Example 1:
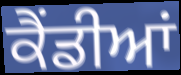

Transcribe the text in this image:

ਕੈਂਡੀਆਂ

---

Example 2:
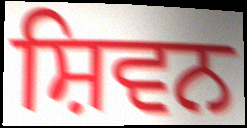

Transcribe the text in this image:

ਸ਼ਿਵਨ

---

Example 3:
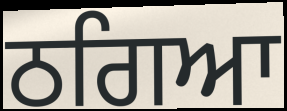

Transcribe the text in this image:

ਠਗਿਆ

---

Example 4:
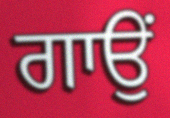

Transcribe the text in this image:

ਗਾਉਂ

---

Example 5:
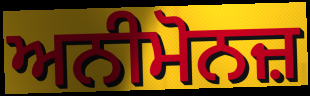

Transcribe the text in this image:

ਅਨੀਮੋਨਜ਼